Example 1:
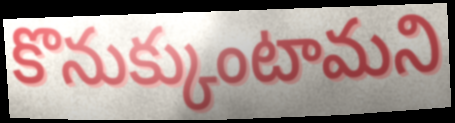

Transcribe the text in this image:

కొనుక్కుంటామని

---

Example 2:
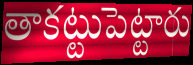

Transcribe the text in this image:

తాకట్టుపెట్టారు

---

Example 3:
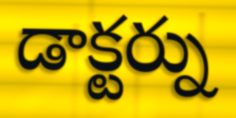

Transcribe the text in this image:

డాక్టర్ను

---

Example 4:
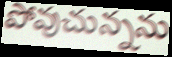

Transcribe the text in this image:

పోవుచున్నను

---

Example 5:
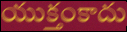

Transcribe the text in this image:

యుక్తంకాదు